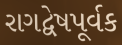
રાગદ્વેષપૂર્વક